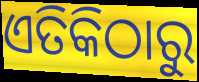
ଏତିକିଠାରୁ